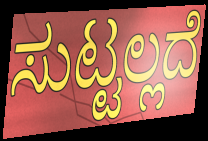
ಸುಟ್ಟಲ್ಲದೆ